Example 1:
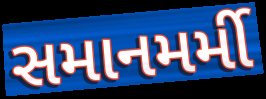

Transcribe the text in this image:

સમાનમર્મી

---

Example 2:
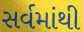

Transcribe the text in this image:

સર્વમાંથી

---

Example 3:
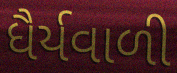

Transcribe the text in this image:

ધૈર્યવાળી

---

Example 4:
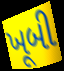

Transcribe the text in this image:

ખૂબી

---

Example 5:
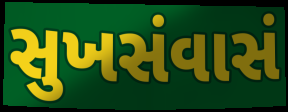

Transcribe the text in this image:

સુખસંવાસં